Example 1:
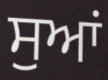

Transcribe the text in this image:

ਸੁਆਂ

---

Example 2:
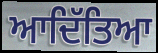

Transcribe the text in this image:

ਆਦਿੱਤਿਆ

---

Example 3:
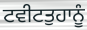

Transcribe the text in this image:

ਟਵੀਟਤੁਹਾਨੂੰ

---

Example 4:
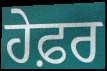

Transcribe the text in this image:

ਹੇਫ਼ਰ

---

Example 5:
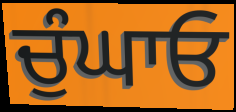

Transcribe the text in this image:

ਚੁੰਘਾਓ